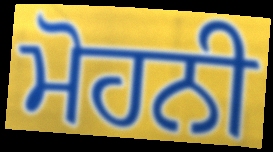
ਮੋਹਨੀ